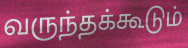
வருந்தக்கூடும்